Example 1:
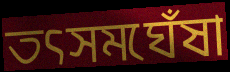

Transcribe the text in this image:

তৎসমঘেঁষা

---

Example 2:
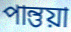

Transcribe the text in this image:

পান্তুয়া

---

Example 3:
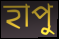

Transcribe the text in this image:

হাপু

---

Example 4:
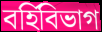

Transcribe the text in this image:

বর্হিবিভাগ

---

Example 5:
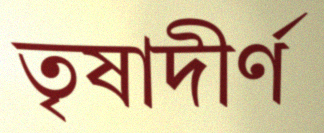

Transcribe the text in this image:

তৃষাদীর্ণ